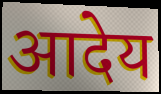
आदेय